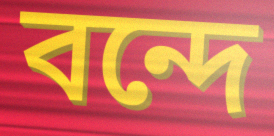
বন্দে